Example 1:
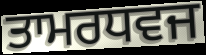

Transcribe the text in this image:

ਤਾਮਰਧਵਜ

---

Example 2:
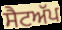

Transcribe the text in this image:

ਸੈਟਅੱਪ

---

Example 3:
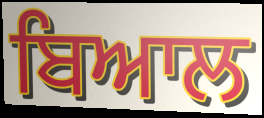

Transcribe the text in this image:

ਬਿਆਲ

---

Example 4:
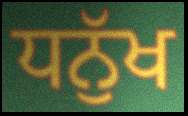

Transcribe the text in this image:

ਧਨੁੱਖ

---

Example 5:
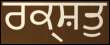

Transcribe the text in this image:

ਰਕ੍ਸ਼ਤੁ